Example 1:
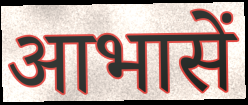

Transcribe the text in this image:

आभासें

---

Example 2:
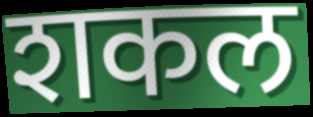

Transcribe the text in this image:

शकल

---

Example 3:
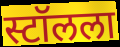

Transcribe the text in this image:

स्टॉलला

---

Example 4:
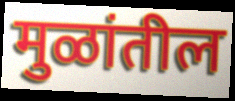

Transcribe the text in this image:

मुळांतील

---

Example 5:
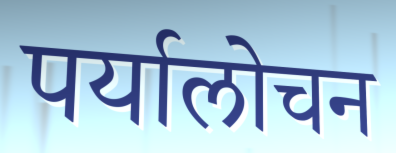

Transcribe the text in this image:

पर्यालोचन